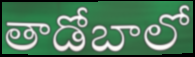
తాడోబాలో